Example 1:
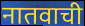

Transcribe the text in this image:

नातवाची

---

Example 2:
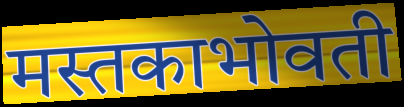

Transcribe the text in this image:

मस्तकाभोवती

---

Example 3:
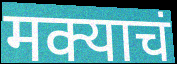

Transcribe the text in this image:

मक्याचं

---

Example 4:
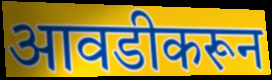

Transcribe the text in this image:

आवडीकरून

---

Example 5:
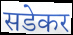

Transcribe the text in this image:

सडेकर